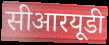
सीआरयूडी